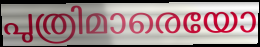
പുത്രിമാരെയോ